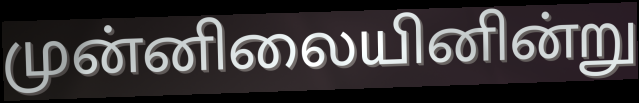
முன்னிலையினின்று